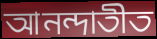
আনন্দাতীত